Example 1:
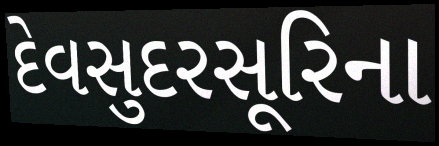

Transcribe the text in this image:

દેવસુદરસૂરિના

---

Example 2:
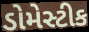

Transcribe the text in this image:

ડોમેસ્ટીક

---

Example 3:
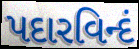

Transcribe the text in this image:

પદારવિન્દં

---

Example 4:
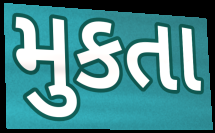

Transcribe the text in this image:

મુકતા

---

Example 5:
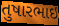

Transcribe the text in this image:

તુષારભાઇ